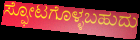
ಸ್ಫೋಟಗೊಳ್ಳಬಹುದು